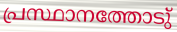
പ്രസ്ഥാനത്തോടു്